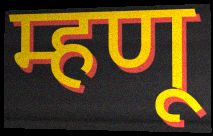
म्हणू